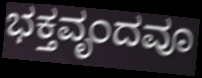
ಭಕ್ತವೃಂದವೂ